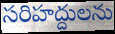
సరిహద్దులను